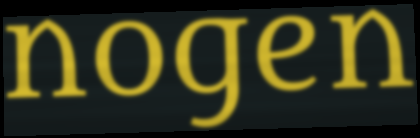
nogen